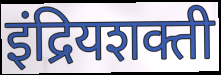
इंद्रियशक्ती